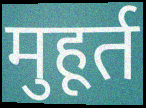
मुहूर्त